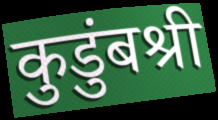
कुडुंबश्री